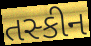
તસ્કીન